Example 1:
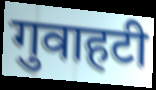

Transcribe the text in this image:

गुवाहटी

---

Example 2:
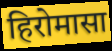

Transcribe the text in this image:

हिरोमासा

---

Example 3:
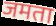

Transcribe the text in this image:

जमता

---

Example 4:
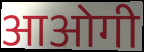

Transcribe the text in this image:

आओगी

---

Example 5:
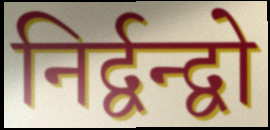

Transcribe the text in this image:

निर्द्वन्द्वो